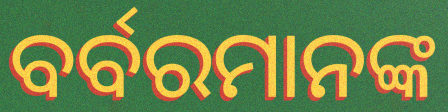
ବର୍ବରମାନଙ୍କ